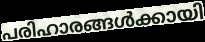
പരിഹാരങ്ങൾക്കായി